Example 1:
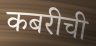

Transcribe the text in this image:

कबरीची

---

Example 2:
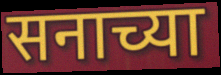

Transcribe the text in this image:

सनाच्या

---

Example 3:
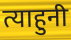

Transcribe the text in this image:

त्याहुनी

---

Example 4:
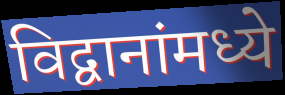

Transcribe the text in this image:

विद्वानांमध्ये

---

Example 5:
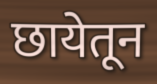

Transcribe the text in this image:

छायेतून